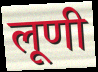
लूणी